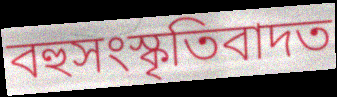
বহুসংস্কৃতিবাদত